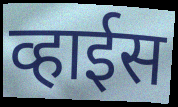
व्हाईस